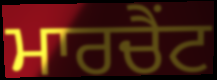
ਮਾਰਚੈਂਟ